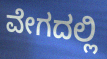
ವೇಗದಲ್ಲಿ